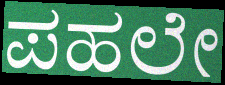
ಪಹಲೇ